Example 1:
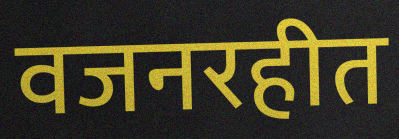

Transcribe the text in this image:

वजनरहीत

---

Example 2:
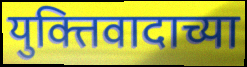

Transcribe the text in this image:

युक्तिवादाच्या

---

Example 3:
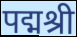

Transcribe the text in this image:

पद्मश्री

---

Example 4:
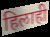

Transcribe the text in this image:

हिलाही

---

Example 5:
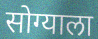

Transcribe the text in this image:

सोग्याला